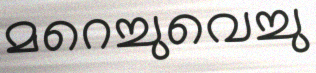
മറെച്ചുവെച്ചു